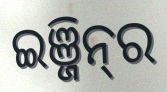
ଇଞ୍ଜିନ୍‌ର